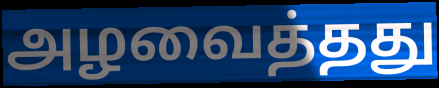
அழவைத்தது